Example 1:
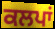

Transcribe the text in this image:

ਕਲਪਾਂ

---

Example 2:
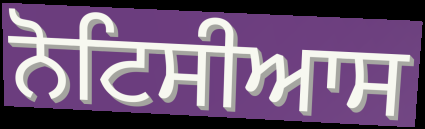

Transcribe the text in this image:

ਨੋਟਿਸੀਆਸ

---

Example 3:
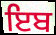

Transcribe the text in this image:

ਇਬ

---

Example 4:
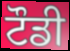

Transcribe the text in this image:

ਟੌਡੀ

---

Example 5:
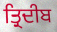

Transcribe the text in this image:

ਤ੍ਰਿਦੀਬ